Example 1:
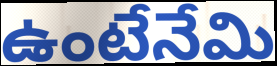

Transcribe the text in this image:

ఉంటేనేమి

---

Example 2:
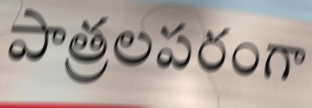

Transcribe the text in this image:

పాత్రలపరంగా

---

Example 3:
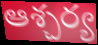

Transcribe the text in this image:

ఆశ్చర్య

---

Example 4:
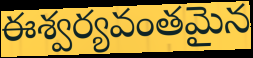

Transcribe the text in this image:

ఈశ్వర్యవంతమైన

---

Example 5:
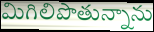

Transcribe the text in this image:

మిగిలిపొతున్నాను